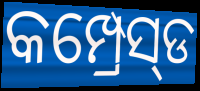
କମ୍ପ୍ରେସ୍‌ଡ